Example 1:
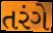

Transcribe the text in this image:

તરંગે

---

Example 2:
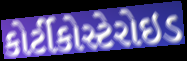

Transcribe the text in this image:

કોર્ટીકોસ્ટેરોઇડ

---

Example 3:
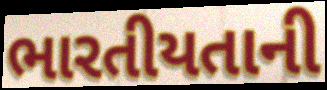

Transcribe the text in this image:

ભારતીયતાની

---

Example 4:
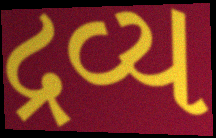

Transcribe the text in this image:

દ્રવ્ય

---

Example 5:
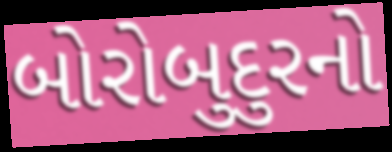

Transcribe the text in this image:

બોરોબુદુરનો